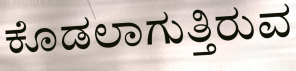
ಕೊಡಲಾಗುತ್ತಿರುವ